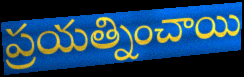
ప్రయత్నించాయి